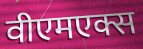
वीएमएक्स